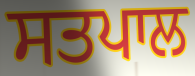
ਸਤਪਾਲ